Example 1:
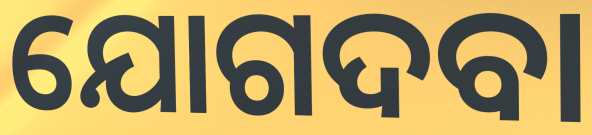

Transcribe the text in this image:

ଯୋଗଦବା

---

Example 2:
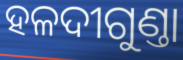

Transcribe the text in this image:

ହଳଦୀଗୁଣ୍ତା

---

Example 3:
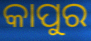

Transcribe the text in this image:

କାପୁର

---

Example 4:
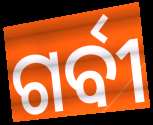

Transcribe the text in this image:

ଗର୍ବୀ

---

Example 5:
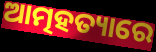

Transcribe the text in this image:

ଆତ୍ମହତ୍ୟାରେ